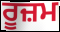
ਰੂਜ਼ਮ